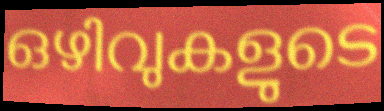
ഒഴിവുകളുടെ